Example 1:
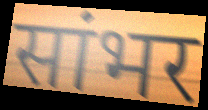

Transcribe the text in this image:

सांभर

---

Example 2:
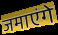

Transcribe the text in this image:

जमाएंगे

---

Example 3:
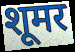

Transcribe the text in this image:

शूमर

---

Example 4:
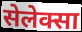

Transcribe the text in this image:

सेलेक्सा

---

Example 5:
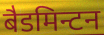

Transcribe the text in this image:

बैडमिन्टन